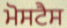
ਮੋਸਟੈਸ